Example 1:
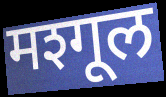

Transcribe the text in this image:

मश्गूल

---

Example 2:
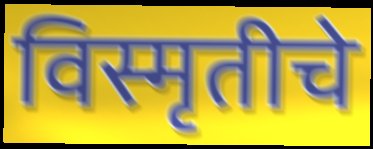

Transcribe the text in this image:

विस्मृतीचे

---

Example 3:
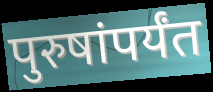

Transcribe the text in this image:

पुरुषांपर्यंत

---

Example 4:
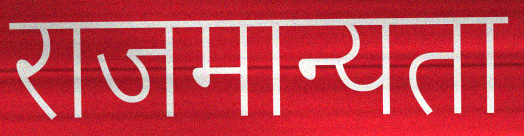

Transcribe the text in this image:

राजमान्यता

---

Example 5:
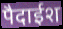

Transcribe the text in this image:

पैदाईश